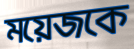
ময়েজকে